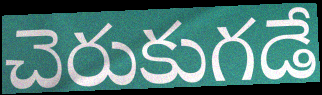
చెరుకుగడే